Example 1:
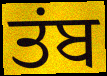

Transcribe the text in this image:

ਤਂਬ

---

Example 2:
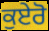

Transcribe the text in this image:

ਕੁਏਰੋ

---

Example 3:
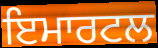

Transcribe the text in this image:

ਇਮਾਰਟਲ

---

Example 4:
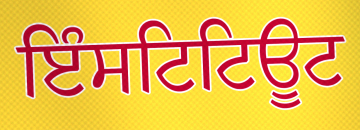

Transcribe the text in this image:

ਇੰਸਟਿਟਿਊਟ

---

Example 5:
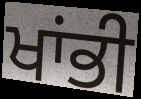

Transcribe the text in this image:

ਖਾਂਭੀ